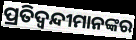
ପ୍ରତିଦ୍ୱନ୍ଦୀମାନଙ୍କର